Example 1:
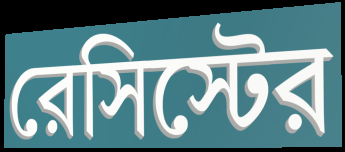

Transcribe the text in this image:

রেসিস্টের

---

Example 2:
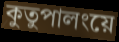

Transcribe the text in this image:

কুতুপালংয়ে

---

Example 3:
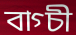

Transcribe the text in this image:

বাগ্চী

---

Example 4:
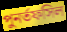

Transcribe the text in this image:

পুনর্তফসিল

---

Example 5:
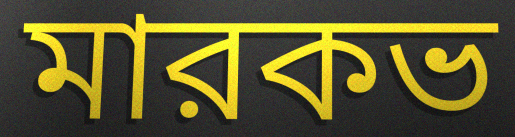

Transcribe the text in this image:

মারকভ